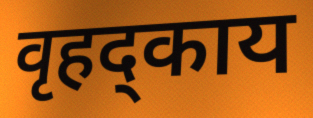
वृहद्काय